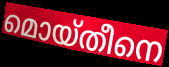
മൊയ്തീനെ